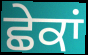
ਛੇਕਾਂ